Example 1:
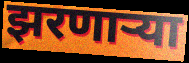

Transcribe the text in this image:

झरणाऱ्या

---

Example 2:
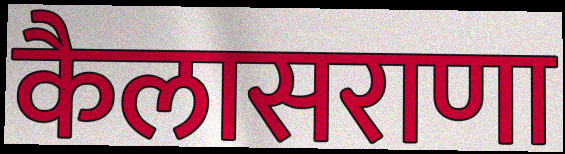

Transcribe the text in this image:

कैलासराणा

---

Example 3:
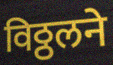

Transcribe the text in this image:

विठ्ठलने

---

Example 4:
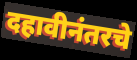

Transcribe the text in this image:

दहावीनंतरचे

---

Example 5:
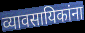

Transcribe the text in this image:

व्यावसायिकांना